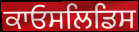
ਕਾਓਸਲਿਡਿਸ